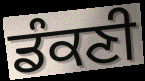
ਡੰਕਣੀ